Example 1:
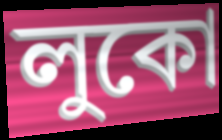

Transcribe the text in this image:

লুকো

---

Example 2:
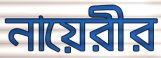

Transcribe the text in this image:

নায়েরীর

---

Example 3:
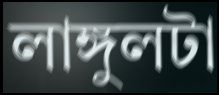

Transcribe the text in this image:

লাঙ্গুলটা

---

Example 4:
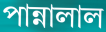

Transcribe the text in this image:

পান্নালাল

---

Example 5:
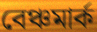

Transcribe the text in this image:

বেঞ্চমার্ক